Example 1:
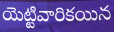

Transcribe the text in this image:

యెట్టివారికయిన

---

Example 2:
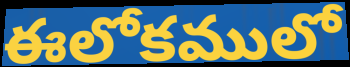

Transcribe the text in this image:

ఈలోకములో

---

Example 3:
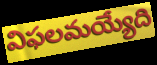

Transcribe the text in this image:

విఫలమయ్యేది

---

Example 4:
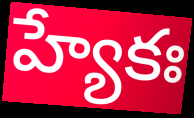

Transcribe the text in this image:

హ్యేకః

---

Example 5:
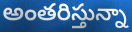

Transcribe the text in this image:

అంతరిస్తున్నా